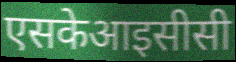
एसकेआइसीसी